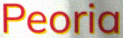
Peoria